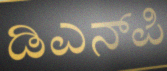
ಡಿಎನ್‌ಪಿ